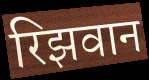
रिझवान